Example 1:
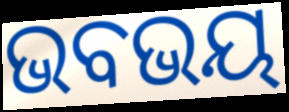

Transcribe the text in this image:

ଭବଭୟ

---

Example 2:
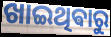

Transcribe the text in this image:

ଖାଇଥିଵାରୁ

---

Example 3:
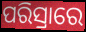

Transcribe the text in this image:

ପରିସ୍ରାରେ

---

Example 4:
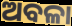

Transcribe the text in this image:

ଅବଳା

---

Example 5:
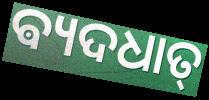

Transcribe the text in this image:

ଵ୍ୟଦଧାତ୍